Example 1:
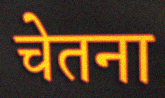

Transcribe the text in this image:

चेतना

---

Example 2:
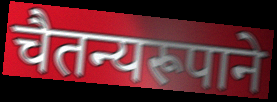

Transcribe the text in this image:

चैतन्यरूपाने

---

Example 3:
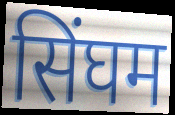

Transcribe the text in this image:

सिंघम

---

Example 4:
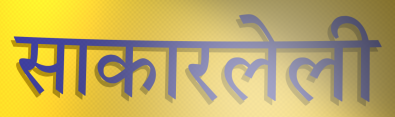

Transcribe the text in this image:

साकारलेली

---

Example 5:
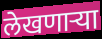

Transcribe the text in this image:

लेखणाऱ्या